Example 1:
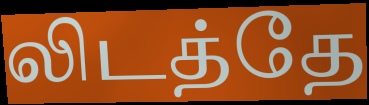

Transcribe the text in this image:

லிடத்தே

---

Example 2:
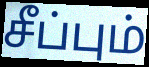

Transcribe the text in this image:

சீப்பும்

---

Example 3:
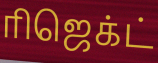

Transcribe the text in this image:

ரிஜெக்ட்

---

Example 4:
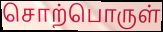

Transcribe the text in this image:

சொற்பொருள்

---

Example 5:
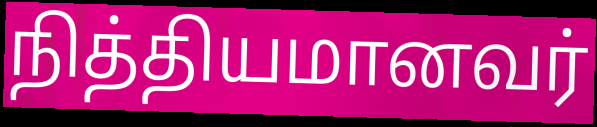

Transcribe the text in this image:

நித்தியமானவர்